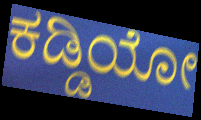
ಕಡ್ಡಿಯೋ